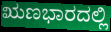
ಋಣಭಾರದಲ್ಲಿ